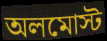
অলমোস্ট